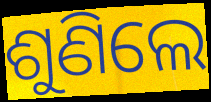
ଶୁଣିଲେ